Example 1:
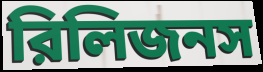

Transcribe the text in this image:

রিলিজনস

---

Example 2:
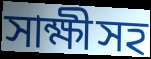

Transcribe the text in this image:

সাক্ষীসহ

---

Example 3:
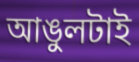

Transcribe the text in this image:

আঙুলটাই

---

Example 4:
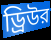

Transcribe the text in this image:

ড্রিউর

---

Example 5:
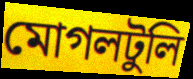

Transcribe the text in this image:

মোগলটুলি